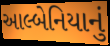
આલ્બેનિયાનું